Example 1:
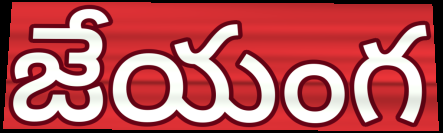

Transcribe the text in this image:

జేయంగ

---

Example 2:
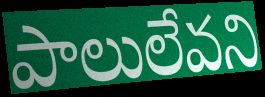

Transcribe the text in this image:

పాలులేవని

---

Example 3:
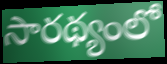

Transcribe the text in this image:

సారథ్యంలో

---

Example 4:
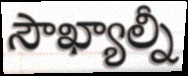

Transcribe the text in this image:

సౌఖ్యాల్నీ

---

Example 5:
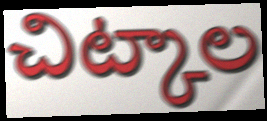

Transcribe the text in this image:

చిట్కాల